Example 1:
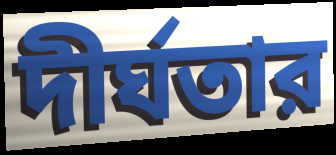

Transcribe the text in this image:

দীর্ঘতার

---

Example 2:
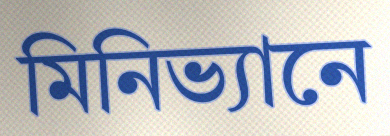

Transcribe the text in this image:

মিনিভ্যানে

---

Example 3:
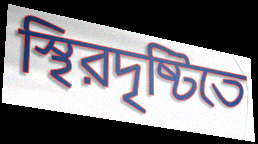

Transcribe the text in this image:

স্থিরদৃষ্টিতে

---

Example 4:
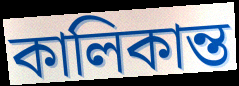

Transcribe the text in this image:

কালিকান্ত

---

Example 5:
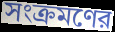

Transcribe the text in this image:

সংক্রমণের